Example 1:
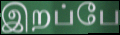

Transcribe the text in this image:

இறப்பே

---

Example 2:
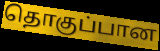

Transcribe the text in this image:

தொகுப்பான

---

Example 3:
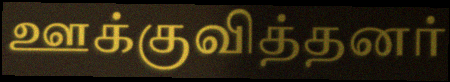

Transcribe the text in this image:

ஊக்குவித்தனர்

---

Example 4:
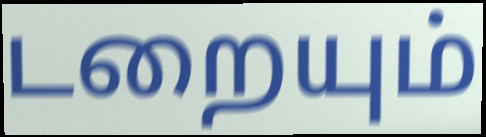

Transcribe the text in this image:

டறையும்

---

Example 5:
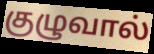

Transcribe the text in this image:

குழுவால்